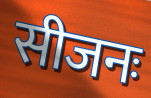
सीजनः